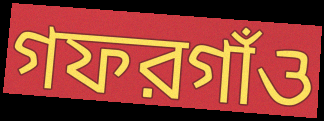
গফরগাঁও